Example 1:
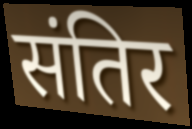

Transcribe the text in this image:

संतिर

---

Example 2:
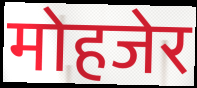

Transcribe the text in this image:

मोहजेर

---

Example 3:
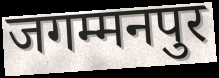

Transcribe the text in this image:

जगम्मनपुर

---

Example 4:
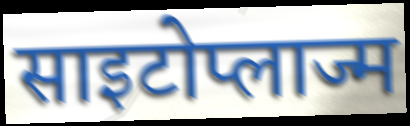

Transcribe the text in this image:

साइटोप्लाज्म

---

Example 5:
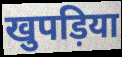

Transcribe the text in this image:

खुपड़िया